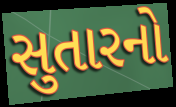
સુતારનો